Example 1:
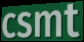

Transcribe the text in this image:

csmt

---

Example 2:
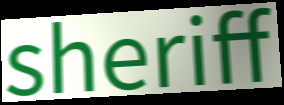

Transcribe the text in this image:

sheriff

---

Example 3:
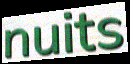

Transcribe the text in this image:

nuits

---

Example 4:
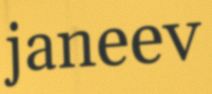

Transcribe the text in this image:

janeev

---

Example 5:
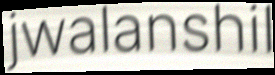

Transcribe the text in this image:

jwalanshil